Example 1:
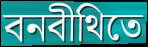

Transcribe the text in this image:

বনবীথিতে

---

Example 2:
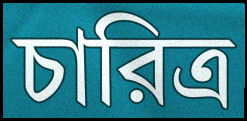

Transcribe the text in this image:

চারিত্র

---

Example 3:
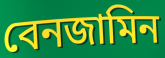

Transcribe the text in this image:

বেনজামিন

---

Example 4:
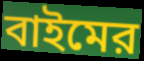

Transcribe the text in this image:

বাইমের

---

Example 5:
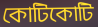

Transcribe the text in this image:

কোটিকোটি